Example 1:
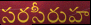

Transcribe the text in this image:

సరసీరుహ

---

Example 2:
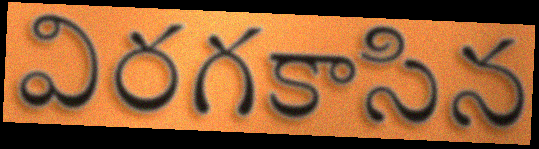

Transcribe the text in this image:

విరగకాసిన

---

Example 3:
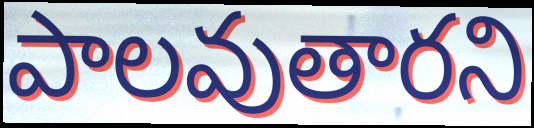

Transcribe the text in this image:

పాలవుతారని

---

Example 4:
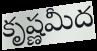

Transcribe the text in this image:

కృష్ణమీద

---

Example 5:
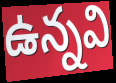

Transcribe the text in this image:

ఉన్నవి